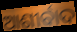
ଆଶୀର୍ବାଦ